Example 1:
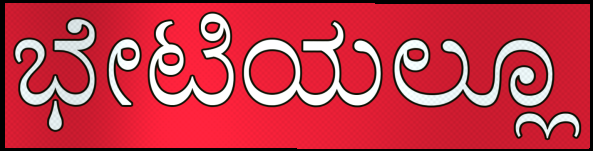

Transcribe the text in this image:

ಭೇಟಿಯಲ್ಲೂ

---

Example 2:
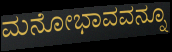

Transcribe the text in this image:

ಮನೋಭಾವವನ್ನೂ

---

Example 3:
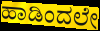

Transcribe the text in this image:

ಹಾಡಿಂದಲೇ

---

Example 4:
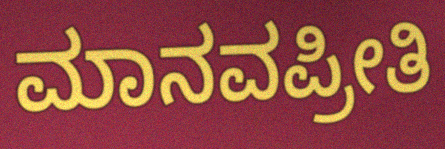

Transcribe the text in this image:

ಮಾನವಪ್ರೀತಿ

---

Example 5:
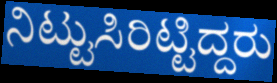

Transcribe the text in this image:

ನಿಟ್ಟುಸಿರಿಟ್ಟಿದ್ದರು